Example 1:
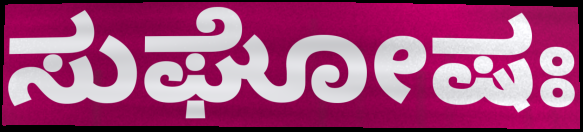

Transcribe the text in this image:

ಸುಘೋಷಃ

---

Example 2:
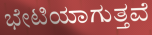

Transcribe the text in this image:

ಭೇಟಿಯಾಗುತ್ತವೆ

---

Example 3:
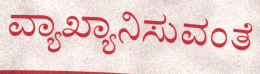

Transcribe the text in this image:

ವ್ಯಾಖ್ಯಾನಿಸುವಂತೆ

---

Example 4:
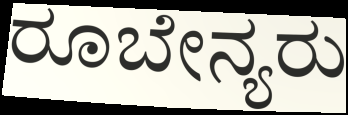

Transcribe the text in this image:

ರೂಬೇನ್ಯರು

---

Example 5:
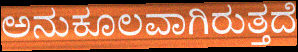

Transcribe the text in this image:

ಅನುಕೂಲವಾಗಿರುತ್ತದೆ